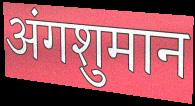
अंगशुमान